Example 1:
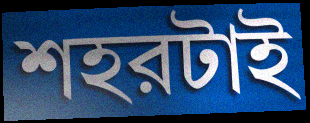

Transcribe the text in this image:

শহরটাই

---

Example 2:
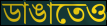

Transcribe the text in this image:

ডাঙাতেও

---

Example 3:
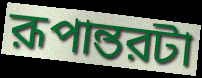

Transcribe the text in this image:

রূপান্তরটা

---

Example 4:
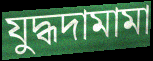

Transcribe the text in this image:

যুদ্ধদামামা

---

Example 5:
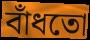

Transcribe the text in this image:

বাঁধতো